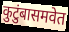
कुटुंबासमवेत